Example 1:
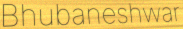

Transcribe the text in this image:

Bhubaneshwar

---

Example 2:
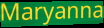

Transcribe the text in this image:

Maryanna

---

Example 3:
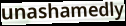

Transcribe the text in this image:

unashamedly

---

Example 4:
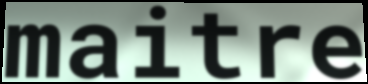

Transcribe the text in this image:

maitre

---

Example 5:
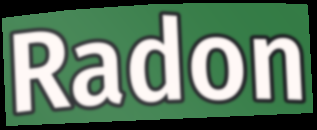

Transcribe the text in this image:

Radon